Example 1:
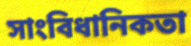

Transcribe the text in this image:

সাংবিধানিকতা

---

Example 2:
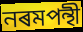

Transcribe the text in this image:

নৰমপন্থী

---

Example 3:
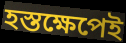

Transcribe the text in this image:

হস্তক্ষেপেই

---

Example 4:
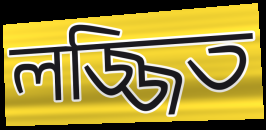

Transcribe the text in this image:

লজ্জিত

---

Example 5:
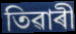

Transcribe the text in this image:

তিৱাৰী